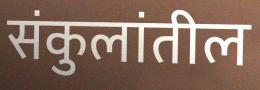
संकुलांतील